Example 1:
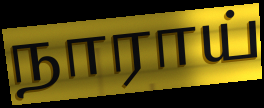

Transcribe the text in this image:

நாராய்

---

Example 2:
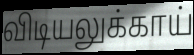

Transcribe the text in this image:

விடியலுக்காய்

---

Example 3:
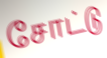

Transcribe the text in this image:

சோட்டு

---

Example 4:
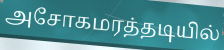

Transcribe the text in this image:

அசோகமரத்தடியில்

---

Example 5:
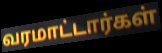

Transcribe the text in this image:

வரமாட்டார்கள்